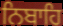
ਨਿਬਾਹਿ